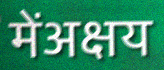
मेंअक्षय